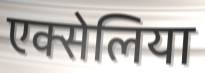
एक्सेलिया